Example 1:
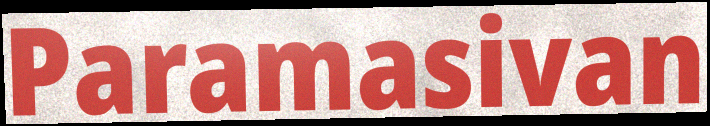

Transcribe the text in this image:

Paramasivan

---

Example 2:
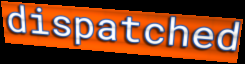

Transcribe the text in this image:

dispatched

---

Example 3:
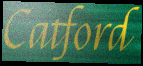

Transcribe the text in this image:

Catford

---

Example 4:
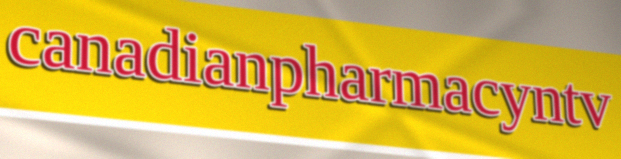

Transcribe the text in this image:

canadianpharmacyntv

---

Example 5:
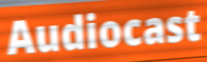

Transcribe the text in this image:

Audiocast